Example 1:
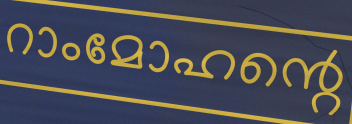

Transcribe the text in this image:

റാംമോഹന്റെ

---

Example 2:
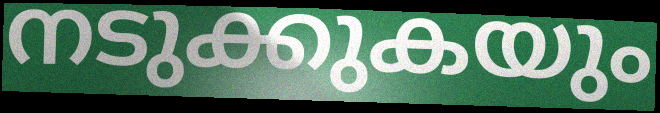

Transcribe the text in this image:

നടുക്കുകയും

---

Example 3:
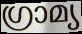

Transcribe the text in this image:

ഗ്രാമ്യ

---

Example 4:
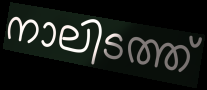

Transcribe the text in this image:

നാലിടത്ത്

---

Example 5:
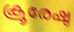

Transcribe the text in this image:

ക്രൂരേഷു